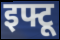
इफ्टू